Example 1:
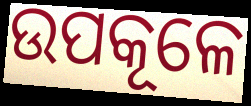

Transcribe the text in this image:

ଉପକୂଳେ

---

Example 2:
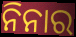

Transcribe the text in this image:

ନିନାର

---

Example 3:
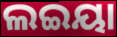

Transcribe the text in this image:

ଲଇୟା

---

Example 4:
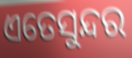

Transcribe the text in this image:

ଏତେସୁନ୍ଦର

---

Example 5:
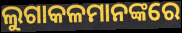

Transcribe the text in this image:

ଲୁଗାକଳମାନଙ୍କରେ